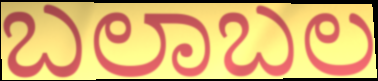
ಬಲಾಬಲ